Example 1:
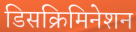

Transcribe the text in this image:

डिसक्रिमिनेशन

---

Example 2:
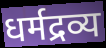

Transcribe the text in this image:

धर्मद्रव्य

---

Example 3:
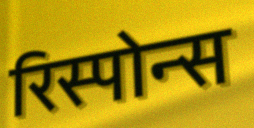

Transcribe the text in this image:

रिस्पोन्स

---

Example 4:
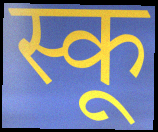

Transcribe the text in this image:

स्कू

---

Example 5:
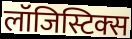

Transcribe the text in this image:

लॉजिस्टिक्‍स